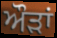
ਔੜਾਂ